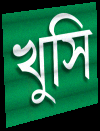
খুসি